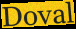
Doval